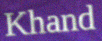
Khand